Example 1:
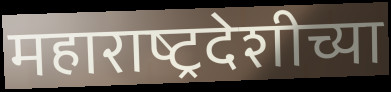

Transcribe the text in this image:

महाराष्ट्रदेशीच्या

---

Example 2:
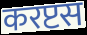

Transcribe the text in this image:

करप्टस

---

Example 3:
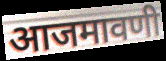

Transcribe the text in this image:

आजमावणी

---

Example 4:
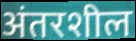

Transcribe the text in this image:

अंतरशील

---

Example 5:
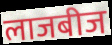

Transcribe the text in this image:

लाजबीज